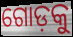
ଗୋଡ଼କୁ